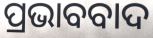
ପ୍ରଭାବବାଦ